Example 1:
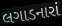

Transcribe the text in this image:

લગાડનારાં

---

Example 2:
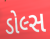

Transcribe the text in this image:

ડોલ્સ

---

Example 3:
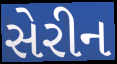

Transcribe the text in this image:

સેરીન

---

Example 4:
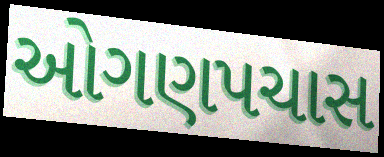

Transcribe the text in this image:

ઓગણપચાસ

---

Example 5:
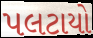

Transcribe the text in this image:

પલટાયો